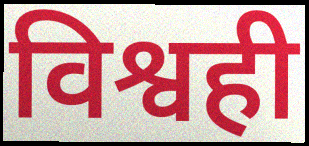
विश्वही